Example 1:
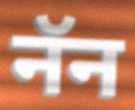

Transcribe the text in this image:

नॅन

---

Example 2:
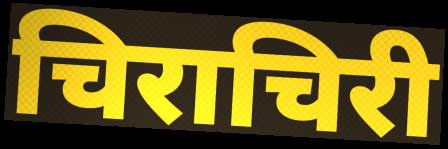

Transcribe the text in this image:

चिराचिरी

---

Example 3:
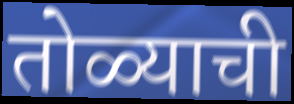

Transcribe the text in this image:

तोळ्याची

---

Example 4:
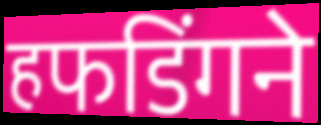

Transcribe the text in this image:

हफडिंगने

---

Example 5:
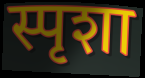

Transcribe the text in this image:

स्पृशा